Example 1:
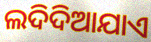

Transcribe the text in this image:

ଲଦିଦିଆଯାଏ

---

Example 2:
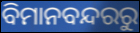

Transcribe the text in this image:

ବିମାନବନ୍ଦରରୁ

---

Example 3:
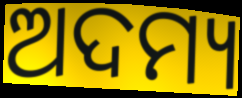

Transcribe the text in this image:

ଅଦମ୍ୟ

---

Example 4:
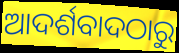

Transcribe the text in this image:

ଆଦର୍ଶବାଦଠାରୁ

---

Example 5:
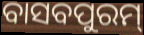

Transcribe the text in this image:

ବାସବପୁରମ୍